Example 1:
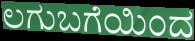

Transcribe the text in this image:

ಲಗುಬಗೆಯಿಂದ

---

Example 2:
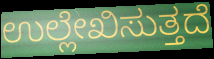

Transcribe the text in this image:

ಉಲ್ಲೇಖಿಸುತ್ತದೆ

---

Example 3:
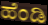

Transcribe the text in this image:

ಹೆಂಡಿ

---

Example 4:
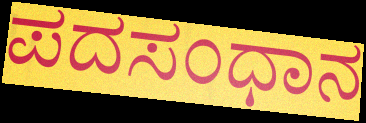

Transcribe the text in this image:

ಪದಸಂಧಾನ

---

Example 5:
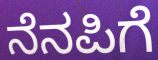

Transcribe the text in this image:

ನೆನಪಿಗೆ